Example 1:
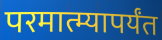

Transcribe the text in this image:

परमात्म्यापर्यंत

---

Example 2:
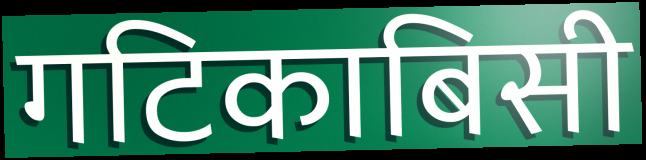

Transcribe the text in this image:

गटिकाबिसी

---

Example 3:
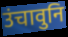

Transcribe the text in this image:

उंचावुनि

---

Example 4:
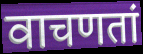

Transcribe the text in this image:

वाचणतां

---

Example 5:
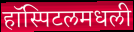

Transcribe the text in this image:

हॉस्पिटलमधली